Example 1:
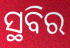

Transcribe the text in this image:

ସ୍ଥବିର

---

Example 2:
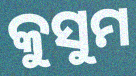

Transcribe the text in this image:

କୁସୁମ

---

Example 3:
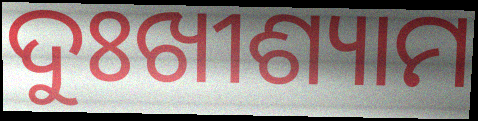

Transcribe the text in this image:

ଦୁଃଖୀଶ୍ୟାମ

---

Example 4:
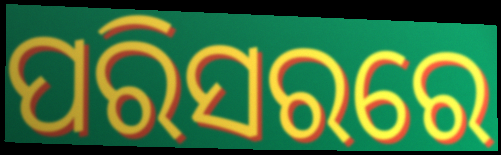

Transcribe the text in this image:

ପରିସରରେ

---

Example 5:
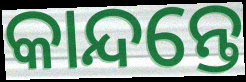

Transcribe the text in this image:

କାନ୍ଦନ୍ତେ